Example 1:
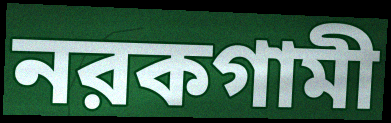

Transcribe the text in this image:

নরকগামী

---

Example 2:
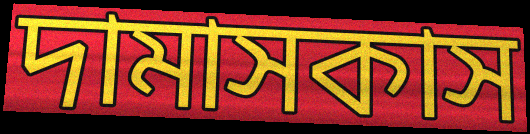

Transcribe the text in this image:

দামাসকাস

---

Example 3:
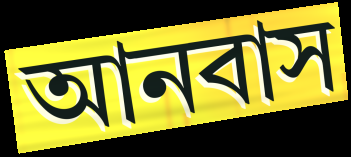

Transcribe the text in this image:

আনবাস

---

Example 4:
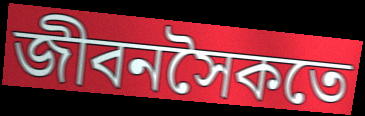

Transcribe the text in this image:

জীবনসৈকতে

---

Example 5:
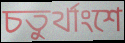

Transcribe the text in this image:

চতুর্থাংশে